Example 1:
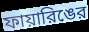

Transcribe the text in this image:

ফায়ারিঙের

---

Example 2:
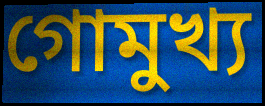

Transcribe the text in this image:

গোমুখ্য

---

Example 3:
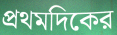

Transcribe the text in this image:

প্রথমদিকের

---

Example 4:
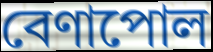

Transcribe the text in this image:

বেণাপোল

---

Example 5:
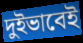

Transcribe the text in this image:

দুইভাবেই